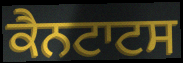
ਕੈਨਟਾਟਸ